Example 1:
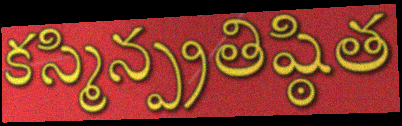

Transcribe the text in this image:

కస్మిన్ప్రతిష్ఠిత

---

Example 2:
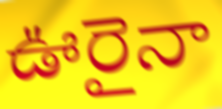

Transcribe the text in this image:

ఊరైనా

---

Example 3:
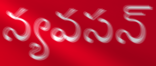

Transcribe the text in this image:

న్యవసన్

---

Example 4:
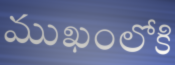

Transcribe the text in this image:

ముఖంలోకి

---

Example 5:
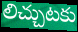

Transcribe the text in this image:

లిచ్చుటకు